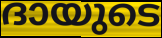
ദായുടെ